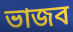
ভাজব